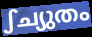
ഽച്യുതം